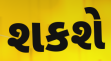
શકશે